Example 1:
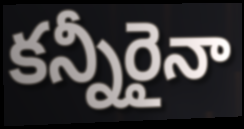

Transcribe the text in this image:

కన్నీరైనా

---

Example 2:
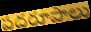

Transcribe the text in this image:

పదరూపాలు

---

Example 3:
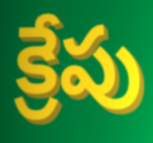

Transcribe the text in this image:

క్రేపు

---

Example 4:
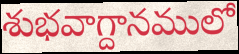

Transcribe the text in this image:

శుభవాగ్దానములో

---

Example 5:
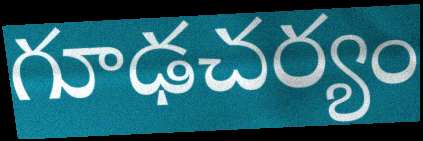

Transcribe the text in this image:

గూఢచర్యం